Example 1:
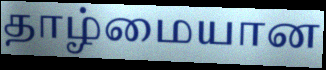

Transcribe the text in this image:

தாழ்மையான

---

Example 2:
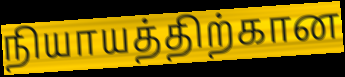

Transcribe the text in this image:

நியாயத்திற்கான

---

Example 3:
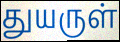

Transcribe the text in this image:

துயருள்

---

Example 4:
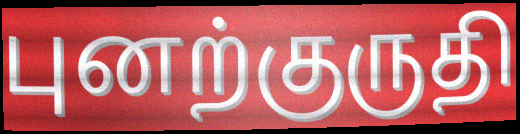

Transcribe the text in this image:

புனற்குருதி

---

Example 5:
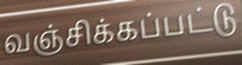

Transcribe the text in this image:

வஞ்சிக்கப்பட்டு